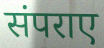
संपराए